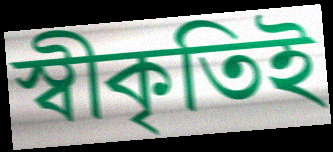
স্বীকৃতিই